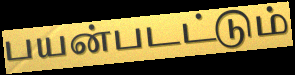
பயன்படட்டும்